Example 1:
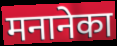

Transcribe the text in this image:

मनानेका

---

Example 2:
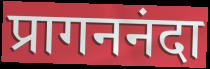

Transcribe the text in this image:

प्रागननंदा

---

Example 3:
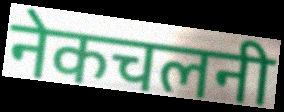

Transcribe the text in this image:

नेकचलनी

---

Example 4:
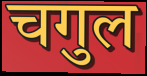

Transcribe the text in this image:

चगुल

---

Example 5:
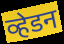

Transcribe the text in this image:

व्हेडन